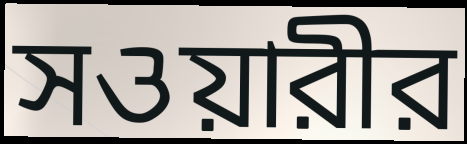
সওয়ারীর